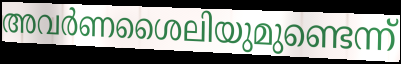
അവർണശൈലിയുമുണ്ടെന്ന്